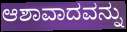
ಆಶಾವಾದವನ್ನು